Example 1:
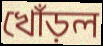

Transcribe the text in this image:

খোঁড়ল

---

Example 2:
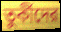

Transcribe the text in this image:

তুর্কীদের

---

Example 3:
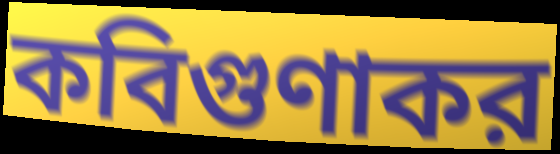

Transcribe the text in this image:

কবিগুণাকর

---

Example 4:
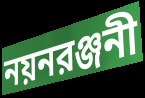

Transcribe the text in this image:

নয়নরঞ্জনী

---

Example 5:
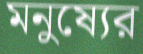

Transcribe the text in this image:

মনুষ্যের